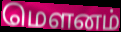
மெளனம்